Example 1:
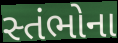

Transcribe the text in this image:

સ્તંભોના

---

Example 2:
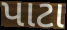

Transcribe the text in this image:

પાટા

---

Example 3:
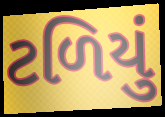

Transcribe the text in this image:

ટળિયું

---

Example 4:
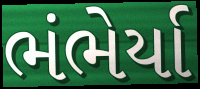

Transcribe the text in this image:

ભંભેર્યા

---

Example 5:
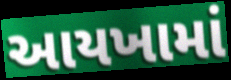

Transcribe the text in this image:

આયખામાં